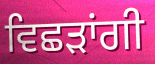
ਵਿਛੜਾਂਗੀ